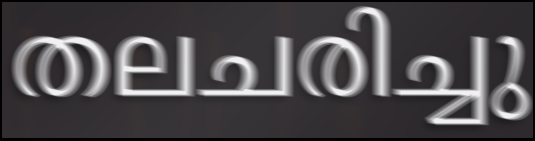
തലചരിച്ചു